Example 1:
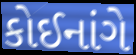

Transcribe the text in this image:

કોઈનાંગે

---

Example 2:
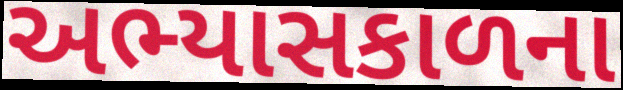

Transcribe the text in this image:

અભ્યાસકાળના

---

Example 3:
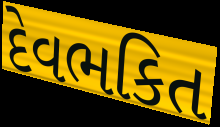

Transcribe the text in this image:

દેવભકિત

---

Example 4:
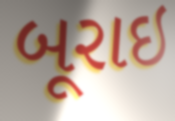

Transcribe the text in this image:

બૂરાઇ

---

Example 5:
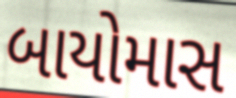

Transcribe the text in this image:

બાયોમાસ